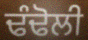
ਢੰਢੋਲੀ